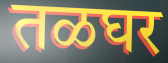
तळघर